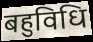
बहुविधि